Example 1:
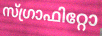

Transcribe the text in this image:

സ്ഗ്രാഫിറ്റോ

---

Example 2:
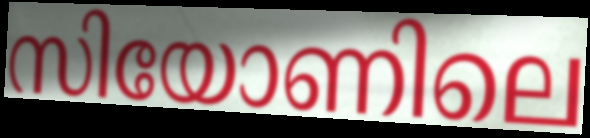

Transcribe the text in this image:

സിയോണിലെ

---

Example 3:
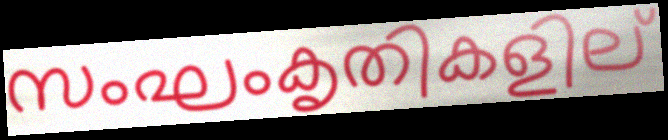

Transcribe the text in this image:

സംഘംകൃതികളില്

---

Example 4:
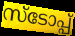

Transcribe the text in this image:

സ്ടോപ്പ്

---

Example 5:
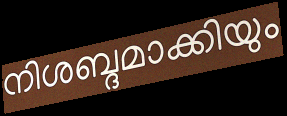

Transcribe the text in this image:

നിശബ്ദമാക്കിയും